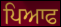
ਪਿਆਫ